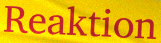
Reaktion